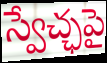
స్వేచ్ఛపై